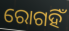
ରୋଗହିଁ